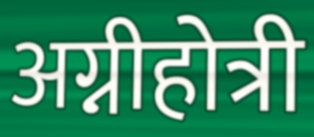
अग्नीहोत्री